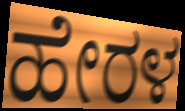
ಹೇರಳ